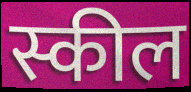
स्‍कील